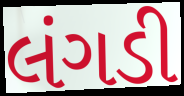
લંગડી